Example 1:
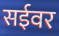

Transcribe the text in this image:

सईवर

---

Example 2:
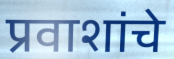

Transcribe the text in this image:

प्रवाशांचे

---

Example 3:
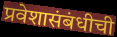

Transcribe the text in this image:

प्रवेशासंबंधीची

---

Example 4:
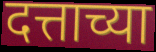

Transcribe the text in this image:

दत्ताच्या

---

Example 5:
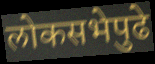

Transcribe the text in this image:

लोकसभेपुढे